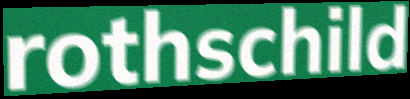
rothschild